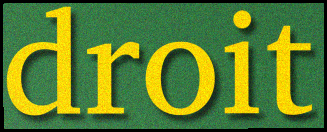
droit